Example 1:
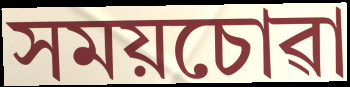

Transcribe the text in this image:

সময়চোৱা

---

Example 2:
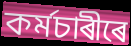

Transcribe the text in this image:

কৰ্মচাৰীৰে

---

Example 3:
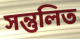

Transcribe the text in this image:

সন্তুলিত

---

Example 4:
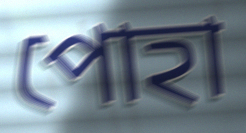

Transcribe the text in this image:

পোহা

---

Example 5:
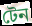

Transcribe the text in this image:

টেন